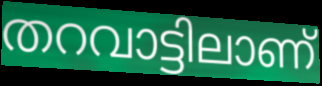
തറവാട്ടിലാണ്